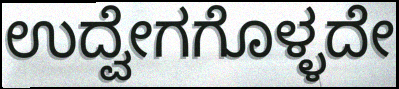
ಉದ್ವೇಗಗೊಳ್ಳದೇ